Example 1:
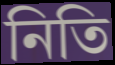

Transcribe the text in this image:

নিতি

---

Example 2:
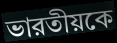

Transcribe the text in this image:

ভারতীয়কে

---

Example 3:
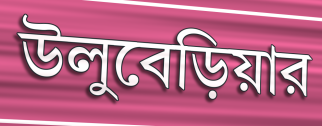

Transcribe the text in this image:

উলুবেড়িয়ার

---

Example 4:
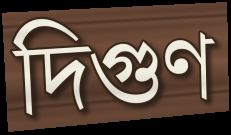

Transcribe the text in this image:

দিগুণ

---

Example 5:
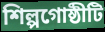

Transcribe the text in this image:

শিল্পগোষ্ঠীটি